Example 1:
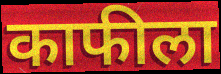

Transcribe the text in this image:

काफीला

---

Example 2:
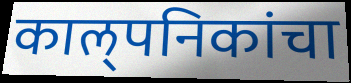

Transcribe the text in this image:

काल्पनिकांचा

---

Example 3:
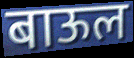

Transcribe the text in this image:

बाऊल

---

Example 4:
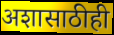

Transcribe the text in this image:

अशासाठीही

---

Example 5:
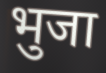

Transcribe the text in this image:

भुजा